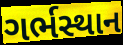
ગર્ભસ્થાન